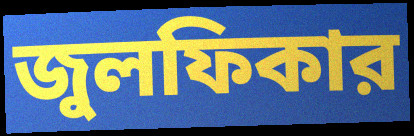
জুলফিকার